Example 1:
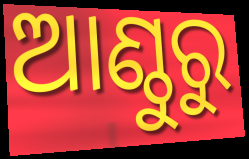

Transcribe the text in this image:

ଆଣ୍ଠୁରୁ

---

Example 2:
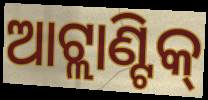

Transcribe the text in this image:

ଆଟ୍ଲାଣ୍ଟିକ୍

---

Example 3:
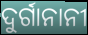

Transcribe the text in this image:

ଦୁର୍ଗାନାନୀ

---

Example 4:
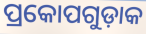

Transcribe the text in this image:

ପ୍ରକୋପଗୁଡ଼ାକ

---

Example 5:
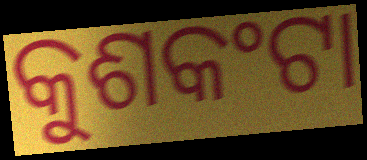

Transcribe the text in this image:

କୁଶକଂଟା